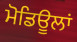
ਮੋਡਿਊਲਾਂ